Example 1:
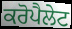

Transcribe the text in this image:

ਕਰੋਪੈਲੇਟ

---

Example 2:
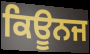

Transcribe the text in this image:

ਕਿਊਨਜ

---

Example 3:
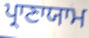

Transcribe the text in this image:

ਪ੍ਰਾਣਾਯਾਮ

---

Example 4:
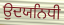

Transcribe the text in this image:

ਉਦਯਨਿਧੀ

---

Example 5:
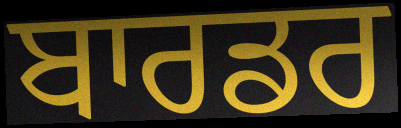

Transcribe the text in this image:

ਬਾਰਡਰ